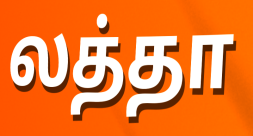
லத்தா